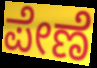
ಪೇಣೆ